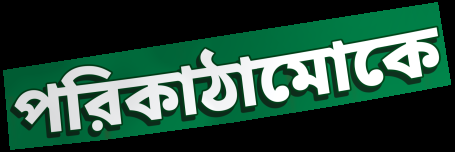
পরিকাঠামোকে